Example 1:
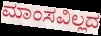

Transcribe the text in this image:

ಮಾಂಸವಿಲ್ಲದ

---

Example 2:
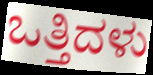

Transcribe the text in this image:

ಒತ್ತಿದಳು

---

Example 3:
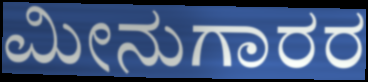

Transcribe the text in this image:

ಮೀನುಗಾರರ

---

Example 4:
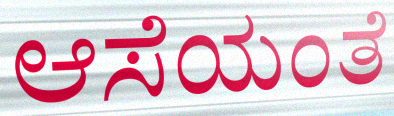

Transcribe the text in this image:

ಆಸೆಯಂತೆ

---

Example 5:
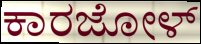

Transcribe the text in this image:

ಕಾರಜೋಳ್